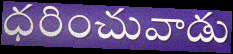
ధరించువాడు